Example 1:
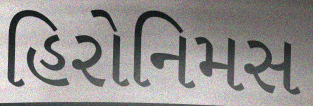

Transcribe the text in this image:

હિરોનિમસ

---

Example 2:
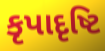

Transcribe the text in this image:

કૃપાદૃષ્ટિ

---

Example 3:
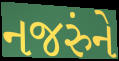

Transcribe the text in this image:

નજરુંને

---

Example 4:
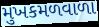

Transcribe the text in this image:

મુખકમળવાળા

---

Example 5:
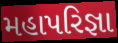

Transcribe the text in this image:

મહાપરિજ્ઞા